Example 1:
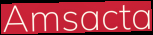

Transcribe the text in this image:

Amsacta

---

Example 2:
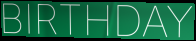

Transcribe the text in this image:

BIRTHDAY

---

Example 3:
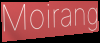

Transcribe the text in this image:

Moirang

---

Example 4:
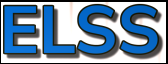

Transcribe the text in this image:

ELSS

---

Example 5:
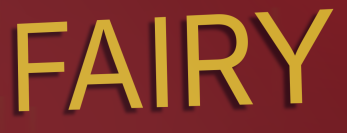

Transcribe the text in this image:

FAIRY